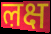
ल़क्ष